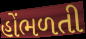
હોંભળતી